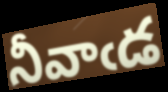
నీవాఁడ